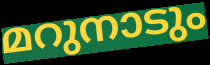
മറുനാടും